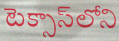
టెక్సాస్‌లోని